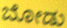
ಬೋಡು